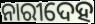
ନାରୀଦେହ